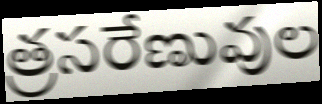
త్రసరేణువుల